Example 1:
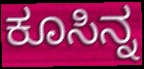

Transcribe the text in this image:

ಕೂಸಿನ್ನ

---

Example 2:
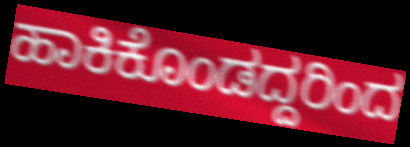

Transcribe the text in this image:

ಹಾಕಿಕೊಂಡದ್ದರಿಂದ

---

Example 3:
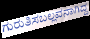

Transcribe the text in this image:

ಗುರುತಿಸಬಲ್ಲವನಾಗಿದ್ದ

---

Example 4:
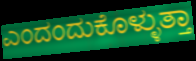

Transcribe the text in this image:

ಎಂದಂದುಕೊಳ್ಳುತ್ತಾ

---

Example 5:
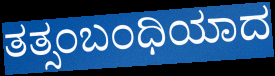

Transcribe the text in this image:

ತತ್ಸಂಬಂಧಿಯಾದ